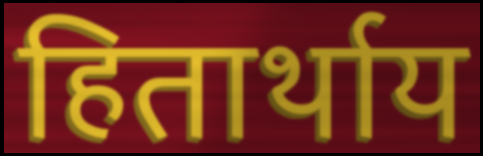
हितार्थाय